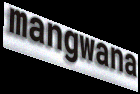
mangwana